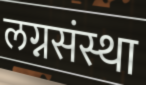
लग्नसंस्था